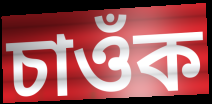
চাওঁক